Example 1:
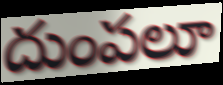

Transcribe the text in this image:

దుంపలూ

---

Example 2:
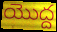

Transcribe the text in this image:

యొద్ద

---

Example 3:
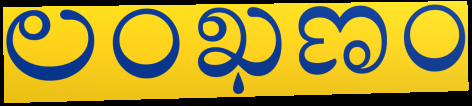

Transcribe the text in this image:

లంఖణం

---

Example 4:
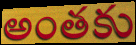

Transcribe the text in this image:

అంతకు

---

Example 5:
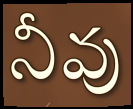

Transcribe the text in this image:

నీవు